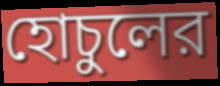
হোচুলের